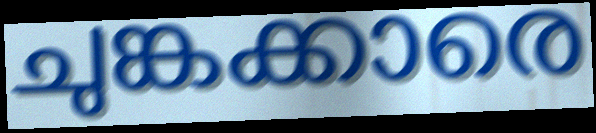
ചുങ്കക്കാരെ